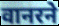
वानरने